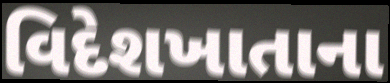
વિદેશખાતાના